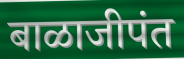
बाळाजीपंत